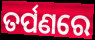
ତର୍ପଣରେ